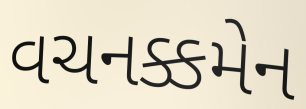
વચનક્કમેન